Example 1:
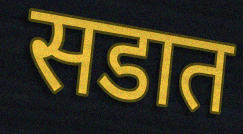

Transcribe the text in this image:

सडात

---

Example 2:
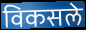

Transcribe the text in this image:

विकसले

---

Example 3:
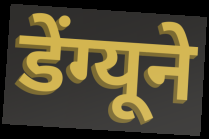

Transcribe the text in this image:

डेंग्यूने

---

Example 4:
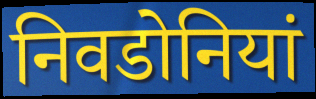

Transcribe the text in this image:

निवडोनियां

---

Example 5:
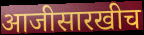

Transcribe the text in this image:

आजीसारखीच